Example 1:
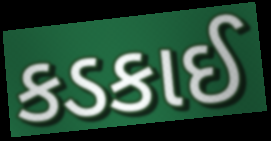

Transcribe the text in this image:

કડકાઈ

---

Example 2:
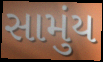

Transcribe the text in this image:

સામુંય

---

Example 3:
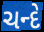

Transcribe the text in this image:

ચન્દે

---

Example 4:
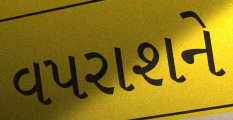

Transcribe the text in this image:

વપરાશને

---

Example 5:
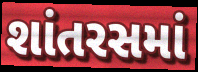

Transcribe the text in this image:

શાંતરસમાં